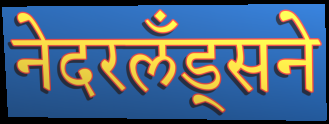
नेदरलँड्सने